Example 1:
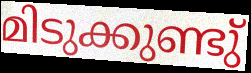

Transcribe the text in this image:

മിടുക്കുണ്ടു്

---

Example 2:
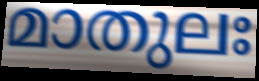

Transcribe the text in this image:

മാതുലഃ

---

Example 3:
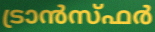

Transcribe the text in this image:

ട്രാൻസ്ഫർ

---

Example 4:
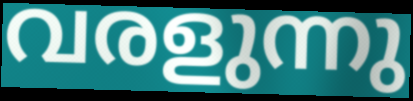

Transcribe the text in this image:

വരളുന്നു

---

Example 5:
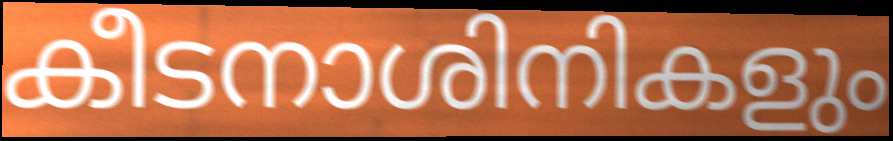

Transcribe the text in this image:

കീടനാശിനികളും